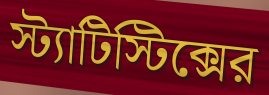
স্ট্যাটিস্টিক্সের